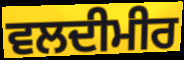
ਵਲਦੀਮੀਰ